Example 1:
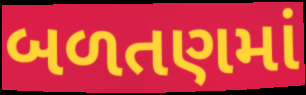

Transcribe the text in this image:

બળતણમાં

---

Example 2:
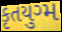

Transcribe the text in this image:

કૃતયુગ્મ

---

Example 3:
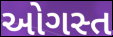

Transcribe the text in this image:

ઓગસ્ત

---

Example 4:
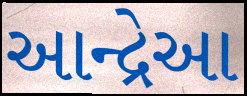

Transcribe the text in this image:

આન્દ્રેઆ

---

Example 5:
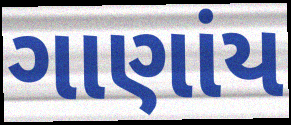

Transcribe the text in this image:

ગાણાંય